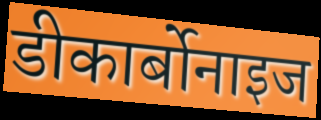
डीकार्बोनाइज